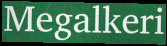
Megalkeri